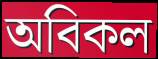
অবিকল